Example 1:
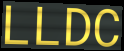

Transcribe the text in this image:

LLDC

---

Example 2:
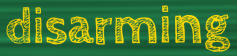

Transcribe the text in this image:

disarming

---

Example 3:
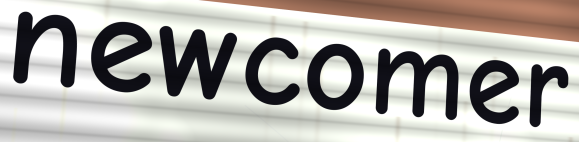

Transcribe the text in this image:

newcomer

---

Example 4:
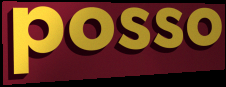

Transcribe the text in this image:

posso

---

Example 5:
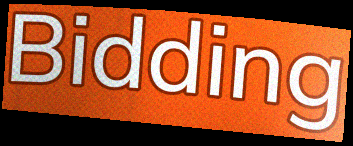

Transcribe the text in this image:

Bidding